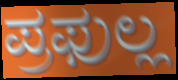
ಪ್ರಫುಲ್ಲ